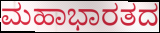
ಮಹಾಭಾರತದ